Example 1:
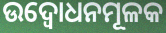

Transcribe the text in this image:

ଉଦ୍ବୋଧନମୂଳକ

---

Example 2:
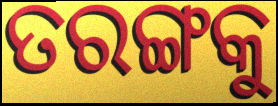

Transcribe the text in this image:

ତରଙ୍ଗକୁ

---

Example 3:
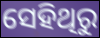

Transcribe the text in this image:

ସେହିଥିରୁ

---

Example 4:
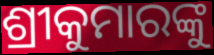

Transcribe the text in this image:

ଶ୍ରୀକୁମାରଙ୍କୁ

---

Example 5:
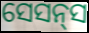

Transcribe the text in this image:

ସେସନ୍‌ସ